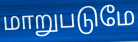
மாறுபடுமே